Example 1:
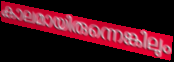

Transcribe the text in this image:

കാലമായിരുന്നെങ്കിലും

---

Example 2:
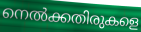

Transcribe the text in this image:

നെൽക്കതിരുകളെ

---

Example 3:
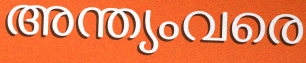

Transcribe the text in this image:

അന്ത്യംവരെ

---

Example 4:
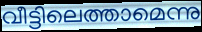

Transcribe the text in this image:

വീട്ടിലെത്താമെന്നു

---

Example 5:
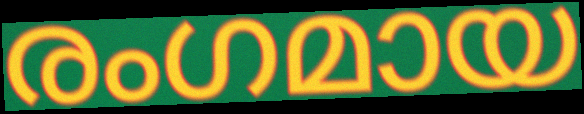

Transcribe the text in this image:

രംഗമായ